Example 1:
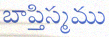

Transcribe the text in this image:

బాప్తిస్మము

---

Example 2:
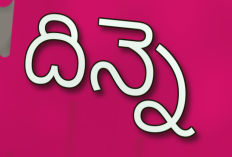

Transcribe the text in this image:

దిన్నె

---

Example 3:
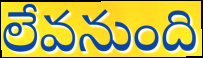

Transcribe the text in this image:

లేవనుంది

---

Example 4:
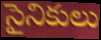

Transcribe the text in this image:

సైనికులు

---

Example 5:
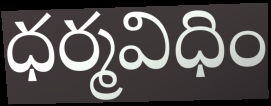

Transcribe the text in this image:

ధర్మవిధిం